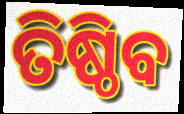
ତିଷ୍ଠିବ